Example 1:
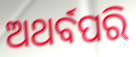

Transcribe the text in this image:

ଅଥର୍ବପରି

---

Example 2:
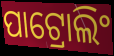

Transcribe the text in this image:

ପାଟ୍ରୋଲିଂ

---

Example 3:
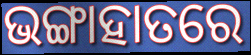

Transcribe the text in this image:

ଭଙ୍ଗାହାତରେ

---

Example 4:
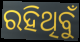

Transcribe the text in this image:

ରହିଥିବୁଁ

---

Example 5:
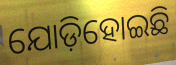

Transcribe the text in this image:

ଯୋଡ଼ିହୋଇଛି